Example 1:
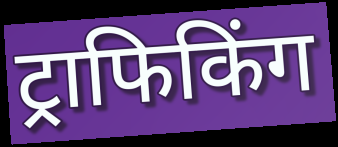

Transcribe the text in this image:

ट्राफिकिंग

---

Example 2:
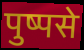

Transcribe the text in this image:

पुष्पसे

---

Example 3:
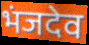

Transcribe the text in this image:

भंजदेव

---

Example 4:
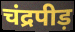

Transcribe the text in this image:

चंद्रपीड़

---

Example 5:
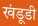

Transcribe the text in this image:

खंडूडी